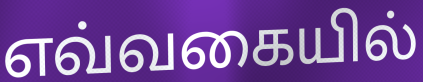
எவ்வகையில்